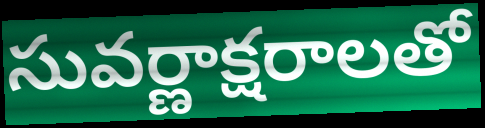
సువర్ణాక్షరాలతో